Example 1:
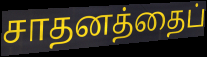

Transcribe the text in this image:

சாதனத்தைப்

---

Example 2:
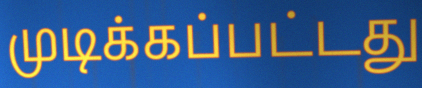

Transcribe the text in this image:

முடிக்கப்பட்டது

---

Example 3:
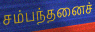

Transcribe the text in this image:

சம்பந்தனைச்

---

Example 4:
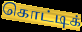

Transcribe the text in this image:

கொட்டிக்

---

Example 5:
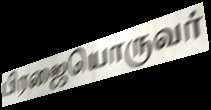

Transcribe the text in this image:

பிரஜையொருவர்